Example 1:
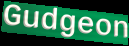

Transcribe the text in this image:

Gudgeon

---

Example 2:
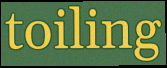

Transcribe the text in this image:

toiling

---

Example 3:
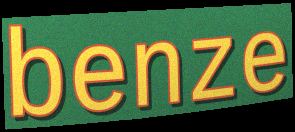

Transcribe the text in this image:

benze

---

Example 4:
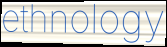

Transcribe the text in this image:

ethnology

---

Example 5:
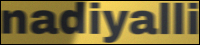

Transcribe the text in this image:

nadiyalli